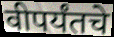
वीपर्यंतचे